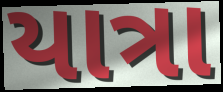
યાત્રા